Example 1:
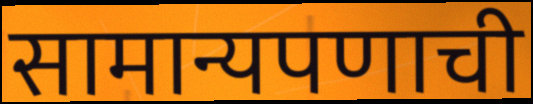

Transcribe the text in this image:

सामान्यपणाची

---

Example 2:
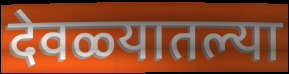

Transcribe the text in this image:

देवळ्यातल्या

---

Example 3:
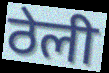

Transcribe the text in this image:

ठेली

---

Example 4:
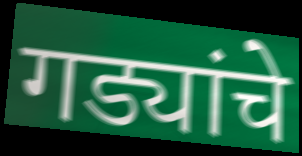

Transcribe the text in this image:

गड्यांचे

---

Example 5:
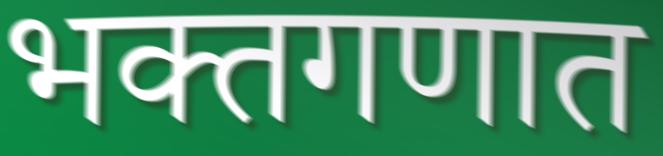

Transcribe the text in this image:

भक्तगणात